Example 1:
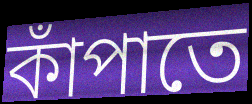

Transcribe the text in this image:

কাঁপাতে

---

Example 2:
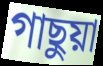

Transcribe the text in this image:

গাছুয়া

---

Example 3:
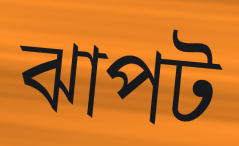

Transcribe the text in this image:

ঝাপট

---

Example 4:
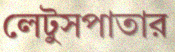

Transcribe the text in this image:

লেটুসপাতার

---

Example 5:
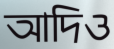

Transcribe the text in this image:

আদিও